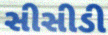
સીસીડી